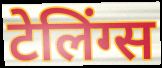
टेलिंग्स